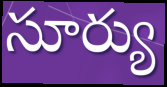
సూర్యు